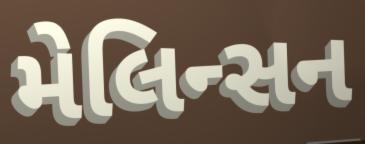
મેલિન્સન